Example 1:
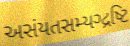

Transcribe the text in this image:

અસંયતસમ્યગ્દ્રષ્ટિ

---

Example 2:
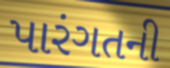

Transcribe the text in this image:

પારંગતની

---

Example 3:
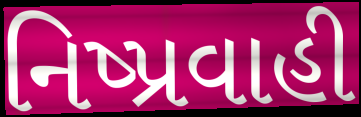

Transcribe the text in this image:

નિષ્પ્રવાહી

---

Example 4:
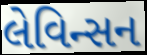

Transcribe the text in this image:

લેવિન્સન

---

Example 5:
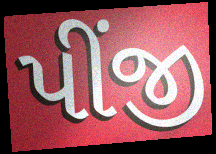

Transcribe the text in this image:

પીંજી